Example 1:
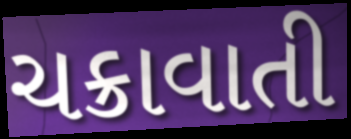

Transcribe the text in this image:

ચક્રાવાતી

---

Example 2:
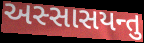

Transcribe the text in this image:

અસ્સાસયન્તુ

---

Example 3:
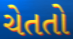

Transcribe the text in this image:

ચેતતો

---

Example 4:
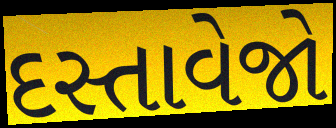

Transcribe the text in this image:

દસ્તાવેજો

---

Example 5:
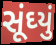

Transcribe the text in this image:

સૂંઘ્યું